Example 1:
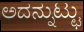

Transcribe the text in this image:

ಅದನ್ನುಟ್ಟು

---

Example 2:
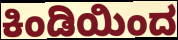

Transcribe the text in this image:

ಕಿಂಡಿಯಿಂದ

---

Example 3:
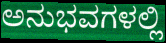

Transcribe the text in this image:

ಅನುಭವಗಳಲ್ಲಿ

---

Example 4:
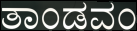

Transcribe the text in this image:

ತಾಂಡವಂ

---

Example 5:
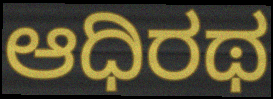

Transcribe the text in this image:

ಆಧಿರಥ